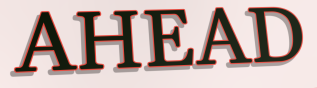
AHEAD